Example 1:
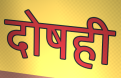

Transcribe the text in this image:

दोषही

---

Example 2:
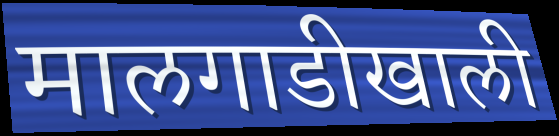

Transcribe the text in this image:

मालगाडीखाली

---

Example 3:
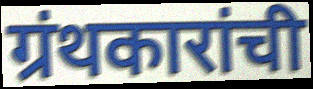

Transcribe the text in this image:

ग्रंथकारांची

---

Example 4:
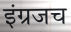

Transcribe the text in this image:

इंग्रजच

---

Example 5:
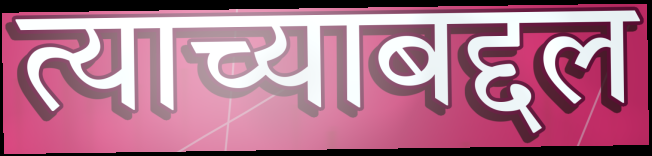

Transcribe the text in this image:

त्याच्याबद्दल